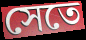
সেতে